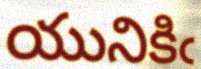
యునికిఁ